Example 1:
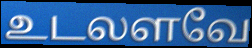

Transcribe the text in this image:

உடலளவே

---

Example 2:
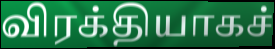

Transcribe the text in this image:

விரக்தியாகச்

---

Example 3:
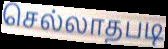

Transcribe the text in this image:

செல்லாதபடி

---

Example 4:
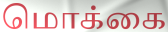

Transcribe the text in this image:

மொக்கை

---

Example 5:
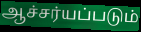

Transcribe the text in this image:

ஆச்சர்யப்படும்